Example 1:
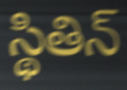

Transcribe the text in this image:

స్థితిన్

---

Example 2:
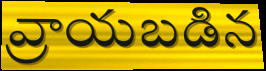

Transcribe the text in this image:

వ్రాయబడిన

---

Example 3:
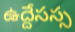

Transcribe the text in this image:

ఉద్దేసస్స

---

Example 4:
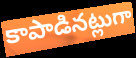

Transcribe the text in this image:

కాపాడినట్లుగా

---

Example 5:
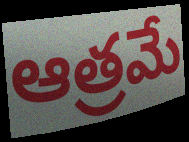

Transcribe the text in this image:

ఆత్రమే